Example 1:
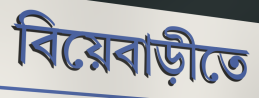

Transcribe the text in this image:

বিয়েবাড়ীতে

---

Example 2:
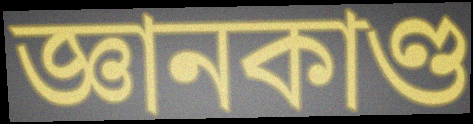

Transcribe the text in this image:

জ্ঞানকাণ্ড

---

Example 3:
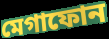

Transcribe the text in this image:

মেগাফোন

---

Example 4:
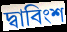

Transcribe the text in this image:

দ্বাবিংশ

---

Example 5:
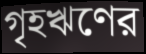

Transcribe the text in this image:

গৃহঋণের